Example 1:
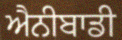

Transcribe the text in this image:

ਐਨੀਬਾਡੀ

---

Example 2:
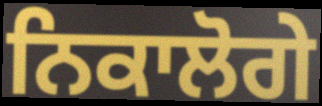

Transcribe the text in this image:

ਨਿਕਾਲੋਗੇ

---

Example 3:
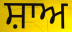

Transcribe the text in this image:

ਸ਼ਾਅ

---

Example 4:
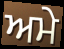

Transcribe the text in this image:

ਅਮੇ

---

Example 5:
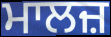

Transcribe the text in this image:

ਮਾਲਜ਼